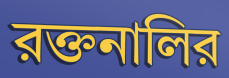
রক্তনালির